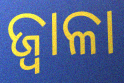
ଜ୍ୱାଳା